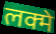
लक्मे